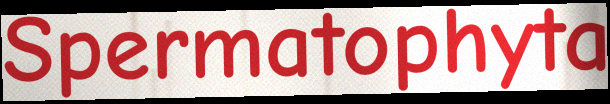
Spermatophyta